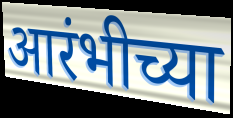
आरंभीच्या